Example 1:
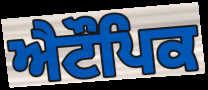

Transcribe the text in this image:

ਐਟੌਪਿਕ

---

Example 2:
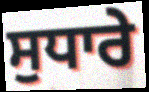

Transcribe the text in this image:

ਸੁਧਾਰੇ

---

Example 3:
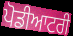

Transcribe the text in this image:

ਪੋਡੀਆਟਰੀ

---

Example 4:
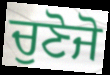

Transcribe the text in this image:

ਚੁਣੋਜੋ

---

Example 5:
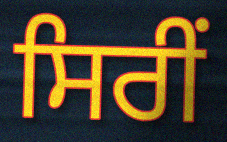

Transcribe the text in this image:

ਸਿਰੀਂ